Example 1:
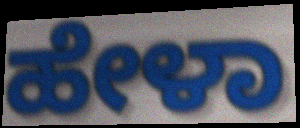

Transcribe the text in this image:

ಹೇಳಾ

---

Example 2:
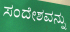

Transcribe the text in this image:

ಸಂದೇಶವನ್ನು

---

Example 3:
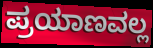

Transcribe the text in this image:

ಪ್ರಯಾಣವಲ್ಲ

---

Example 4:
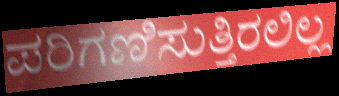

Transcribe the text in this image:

ಪರಿಗಣಿಸುತ್ತಿರಲಿಲ್ಲ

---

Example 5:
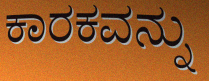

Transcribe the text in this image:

ಕಾರಕವನ್ನು